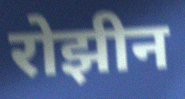
रोझीन